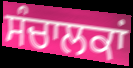
ਸੰਚਾਲਕਾਂ